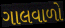
ગાલવાળો